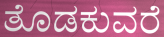
ತೊಡಕುವರೆ